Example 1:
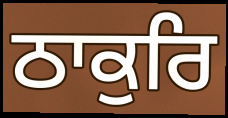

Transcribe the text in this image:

ਠਾਕੁਰਿ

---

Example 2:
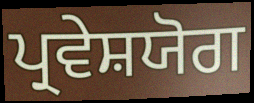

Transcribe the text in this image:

ਪ੍ਰਵੇਸ਼ਯੋਗ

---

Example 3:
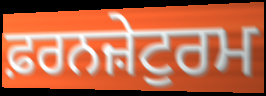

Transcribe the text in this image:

ਫ਼ਰਨਜ਼ੇਟੁਰਮ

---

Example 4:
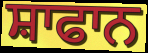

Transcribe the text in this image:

ਸ਼ਾਫਾਨ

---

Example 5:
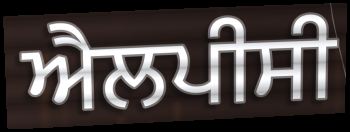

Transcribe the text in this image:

ਐਲਪੀਸੀ